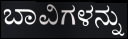
ಬಾವಿಗಳನ್ನು